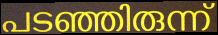
പടഞ്ഞിരുന്ന്